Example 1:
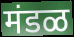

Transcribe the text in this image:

मंडळ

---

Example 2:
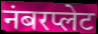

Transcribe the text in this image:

नंबरप्लेट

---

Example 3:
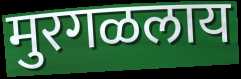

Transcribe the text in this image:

मुरगळलाय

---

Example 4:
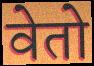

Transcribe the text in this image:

वेतो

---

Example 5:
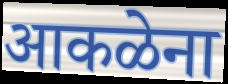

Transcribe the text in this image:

आकळेना